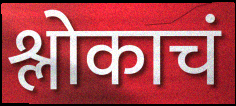
श्लोकाचं